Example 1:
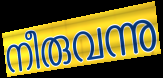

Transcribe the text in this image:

നീരുവന്നു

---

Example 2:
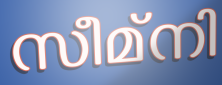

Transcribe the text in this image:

സീമ്നി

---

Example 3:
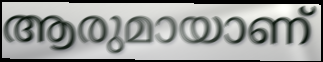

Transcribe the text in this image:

ആരുമായാണ്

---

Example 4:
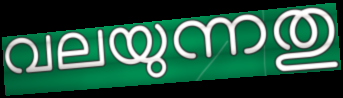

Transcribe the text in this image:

വലയുന്നതു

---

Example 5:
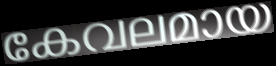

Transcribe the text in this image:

കേവലമായ